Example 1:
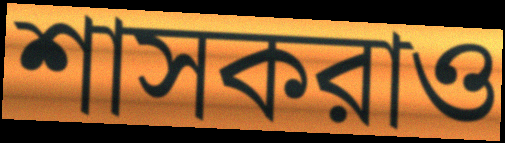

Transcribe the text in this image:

শাসকরাও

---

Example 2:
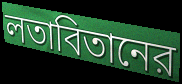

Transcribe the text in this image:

লতাবিতানের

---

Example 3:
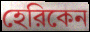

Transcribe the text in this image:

হেরিকেন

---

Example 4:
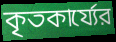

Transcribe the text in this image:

কৃতকার্য্যের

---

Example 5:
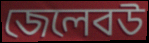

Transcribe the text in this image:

জেলেবউ